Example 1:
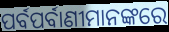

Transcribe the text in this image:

ପର୍ବପର୍ବାଣୀମାନଙ୍କରେ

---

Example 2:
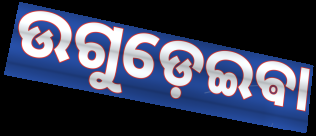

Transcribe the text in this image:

ଉଗୁଡ଼େଇଵା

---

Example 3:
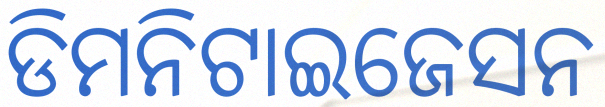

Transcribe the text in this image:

ଡିମନିଟାଇଜେସନ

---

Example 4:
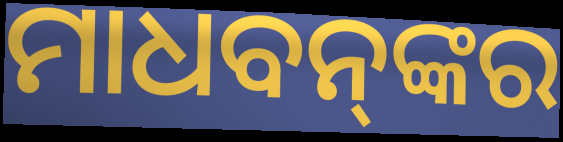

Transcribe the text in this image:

ମାଧବନ୍‌ଙ୍କର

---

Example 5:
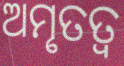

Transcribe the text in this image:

ଅମୃତତ୍ବ